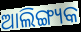
ଆଲିଙ୍ଗ୍ୟକ